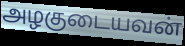
அழகுடையவன்